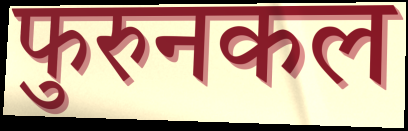
फुरुनकल